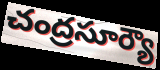
చంద్రసూర్యౌ